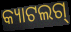
କ୍ୟାଟଲଗ୍